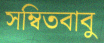
সম্বিতবাবু